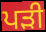
ਪਡ਼ੀ